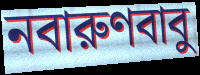
নবারুণবাবু